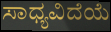
ಸಾಧ್ಯವಿದೆಯೆ